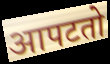
आपटतो